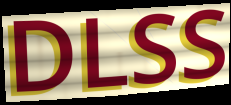
DLSS